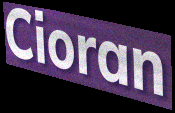
Cioran